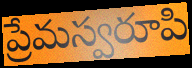
ప్రేమస్వరూపి